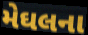
મેઘલના